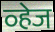
व्हेज